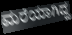
ಮರೆಯಾಗಿದ್ದ